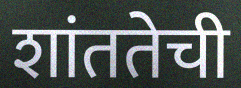
शांततेची